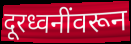
दूरध्वनींवरून